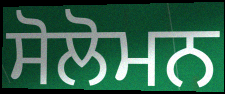
ਸੋਲੋਮਨ